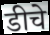
डीचे